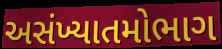
અસંખ્યાતમોભાગ